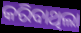
କରିବାଥିଲା